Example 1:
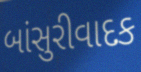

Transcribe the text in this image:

બાંસુરીવાદક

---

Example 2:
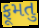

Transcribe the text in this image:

ફૂમતુ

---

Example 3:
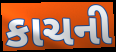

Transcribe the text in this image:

કાચની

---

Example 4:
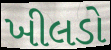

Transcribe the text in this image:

ખીલડો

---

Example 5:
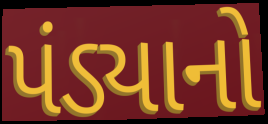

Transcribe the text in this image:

પંડ્યાનો